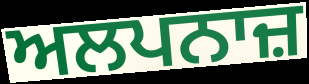
ਅਲਪਨਾਜ਼